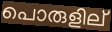
പൊരുളില്